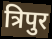
त्रिपुर